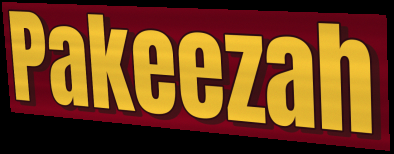
Pakeezah